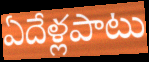
ఏదేళ్లపాటు